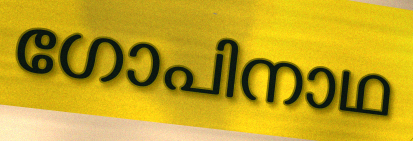
ഗോപിനാഥ